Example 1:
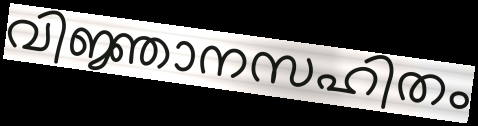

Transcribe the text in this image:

വിജ്ഞാനസഹിതം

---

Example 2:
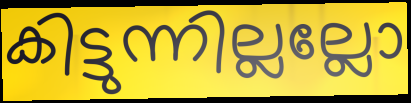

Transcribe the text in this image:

കിട്ടുന്നില്ലല്ലോ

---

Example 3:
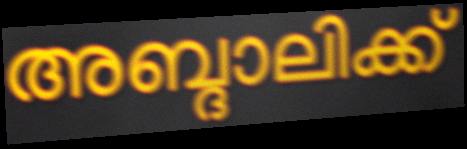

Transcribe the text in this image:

അബ്ദാലിക്ക്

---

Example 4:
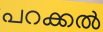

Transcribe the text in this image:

പറക്കൽ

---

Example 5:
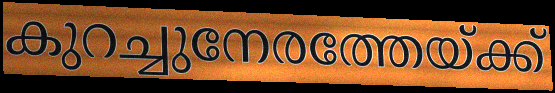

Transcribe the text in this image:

കുറച്ചുനേരത്തേയ്ക്ക്